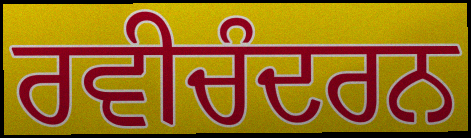
ਰਵੀਚੰਦਰਨ